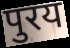
पुरय